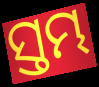
ସ୍ତମ୍ଭ